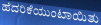
ಹೆದರಿಕೆಯುಂಟಾಯಿತು